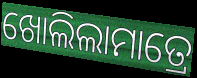
ଖୋଲିଲାମାତ୍ରେ